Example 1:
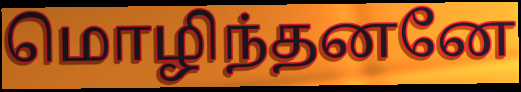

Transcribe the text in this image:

மொழிந்தனனே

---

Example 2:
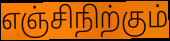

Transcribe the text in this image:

எஞ்சிநிற்கும்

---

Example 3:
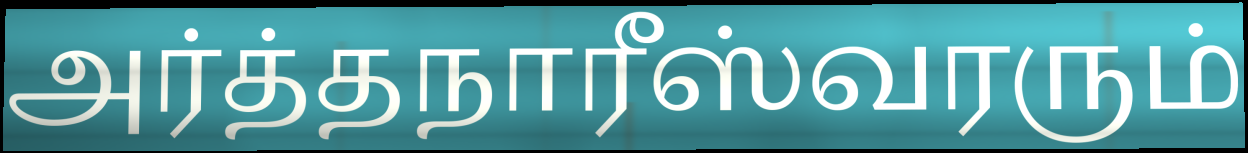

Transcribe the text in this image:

அர்த்தநாரீஸ்வரரும்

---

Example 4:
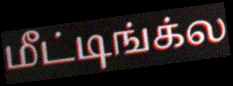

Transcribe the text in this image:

மீட்டிங்க்ல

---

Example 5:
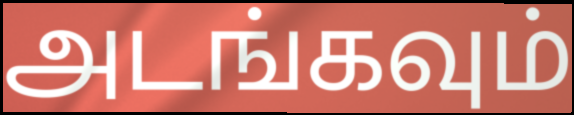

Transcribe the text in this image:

அடங்கவும்